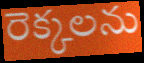
రెక్కలను